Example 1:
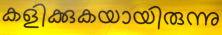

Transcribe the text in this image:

കളിക്കുകയായിരുന്നു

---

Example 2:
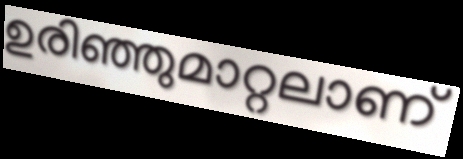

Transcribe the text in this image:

ഉരിഞ്ഞുമാറ്റലാണ്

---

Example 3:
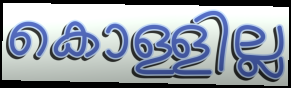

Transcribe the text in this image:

കൊള്ളില്ല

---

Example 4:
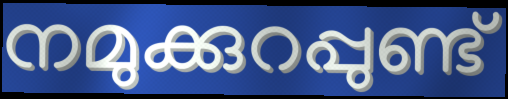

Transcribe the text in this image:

നമുക്കുറപ്പുണ്ട്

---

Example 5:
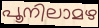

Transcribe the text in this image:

പൂനിലാമഴ